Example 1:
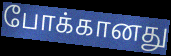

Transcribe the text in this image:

போக்கானது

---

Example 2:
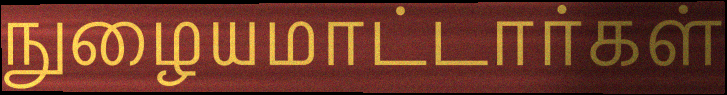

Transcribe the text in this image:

நுழையமாட்டார்கள்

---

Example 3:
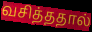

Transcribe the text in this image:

வசித்ததால்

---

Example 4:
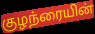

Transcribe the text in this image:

குழந்ரையின்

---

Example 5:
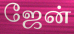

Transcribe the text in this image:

ஜேன்